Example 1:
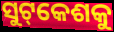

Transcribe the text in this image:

ସୁଟ୍‌କେଶକୁ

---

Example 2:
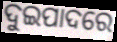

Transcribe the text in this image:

ଦୁଇପାଦରେ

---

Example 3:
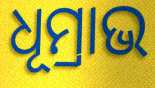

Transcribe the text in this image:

ଧୂମ୍ରାଭ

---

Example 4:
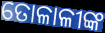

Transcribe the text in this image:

ତୋଳାଳୀଙ୍କ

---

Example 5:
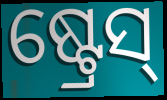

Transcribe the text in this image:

ଷ୍ଟ୍ରେସ୍